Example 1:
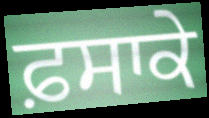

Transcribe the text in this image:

ਫ਼ਸਾਕੇ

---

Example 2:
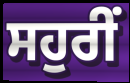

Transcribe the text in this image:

ਸਹੁਰੀਂ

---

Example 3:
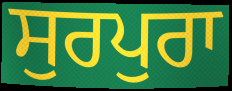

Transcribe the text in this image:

ਸੁਰਪੁਰਾ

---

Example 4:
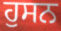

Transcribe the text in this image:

ਹੁਸਨ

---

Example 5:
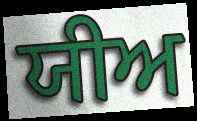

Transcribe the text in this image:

ਯੀਅ